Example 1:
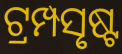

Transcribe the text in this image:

ଟ୍ରମ୍ପସୃଷ୍ଟ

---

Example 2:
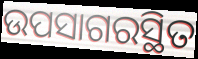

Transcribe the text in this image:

ଉପସାଗରସ୍ଥିତ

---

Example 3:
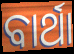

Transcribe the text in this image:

ବାର୍ଥା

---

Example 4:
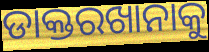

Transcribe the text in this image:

ଡାକ୍ତରଖାନାକୁ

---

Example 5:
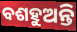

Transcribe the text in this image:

ବଶହୁଅନ୍ତି